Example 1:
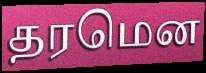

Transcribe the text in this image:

தரமென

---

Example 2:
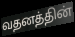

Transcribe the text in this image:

வதனத்தின்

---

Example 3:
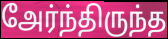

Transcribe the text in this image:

அேர்ந்திருந்த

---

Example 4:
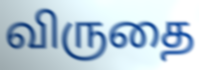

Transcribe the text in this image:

விருதை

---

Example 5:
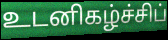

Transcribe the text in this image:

உடனிகழ்ச்சிப்